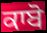
ਕਾਬੋ